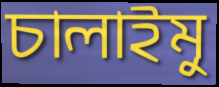
চালাইমু